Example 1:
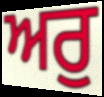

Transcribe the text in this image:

ਅਰੁ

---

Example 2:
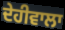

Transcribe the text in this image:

ਦੇਹੀਵਾਲਾ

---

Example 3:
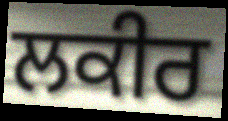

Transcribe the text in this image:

ਲਕੀਰ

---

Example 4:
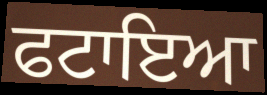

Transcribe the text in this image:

ਫਟਾਇਆ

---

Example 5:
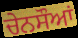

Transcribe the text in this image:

ਚੇਨਸੌਆਂ